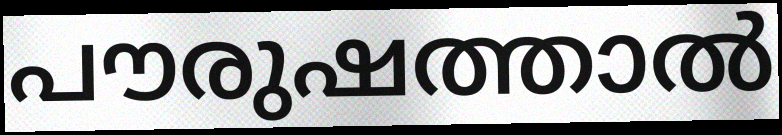
പൗരുഷത്താൽ